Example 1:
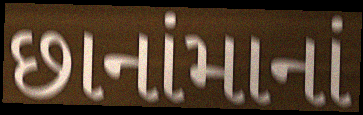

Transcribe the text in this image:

છાનાંમાનાં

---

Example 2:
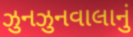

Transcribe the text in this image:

ઝુનઝુનવાલાનું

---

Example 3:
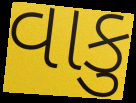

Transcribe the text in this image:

વાકુ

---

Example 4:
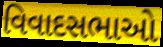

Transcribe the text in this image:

વિવાદસભાઓ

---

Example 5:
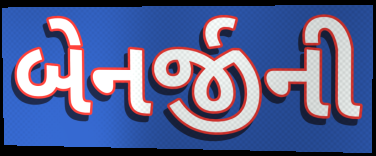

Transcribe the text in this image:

બેનર્જીની